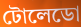
টোলেডো